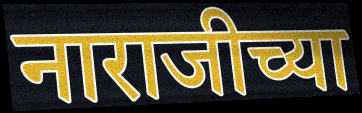
नाराजीच्या